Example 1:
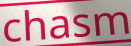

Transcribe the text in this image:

chasm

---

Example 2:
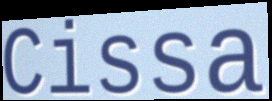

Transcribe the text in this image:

Cissa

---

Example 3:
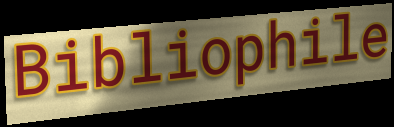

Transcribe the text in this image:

Bibliophile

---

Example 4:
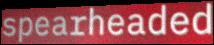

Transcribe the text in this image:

spearheaded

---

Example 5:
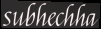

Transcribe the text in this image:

subhechha